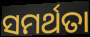
ସମର୍ଥତା